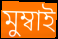
মুম্বাই